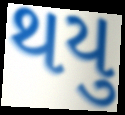
થયુ